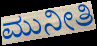
ಮುನೀತಿ